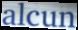
alcun